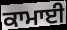
ਕਾਮਾਈ